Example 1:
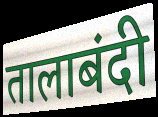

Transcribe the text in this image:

तालाबंदी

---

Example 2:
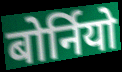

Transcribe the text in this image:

बोर्नियो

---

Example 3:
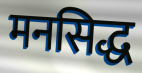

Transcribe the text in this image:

मनसिद्ध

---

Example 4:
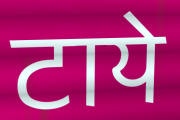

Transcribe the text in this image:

टाये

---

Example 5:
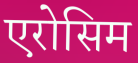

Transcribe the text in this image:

एरोसिम